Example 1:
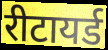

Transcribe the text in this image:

रीटायर्ड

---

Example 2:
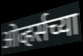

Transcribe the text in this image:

ओव्हर्सच्या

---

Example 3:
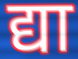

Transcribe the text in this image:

द्या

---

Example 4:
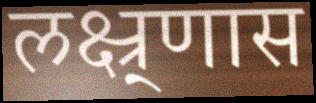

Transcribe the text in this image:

लक्ष्र्णास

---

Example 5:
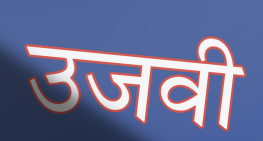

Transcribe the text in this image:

उजवी